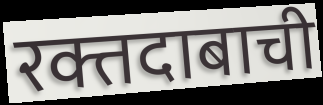
रक्तदाबाची